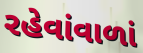
રહેવાંવાળાં